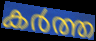
കർത്ത